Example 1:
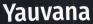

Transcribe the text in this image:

Yauvana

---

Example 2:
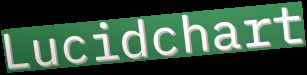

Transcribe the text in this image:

Lucidchart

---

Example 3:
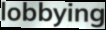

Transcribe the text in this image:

lobbying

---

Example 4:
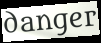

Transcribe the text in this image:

danger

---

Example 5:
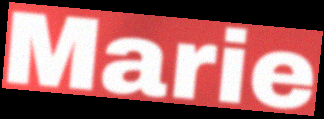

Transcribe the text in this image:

Marie